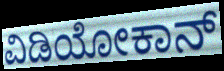
ವಿಡಿಯೋಕಾನ್